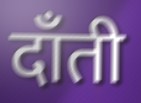
दाँती